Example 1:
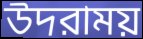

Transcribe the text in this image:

উদরাময়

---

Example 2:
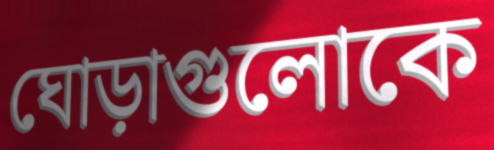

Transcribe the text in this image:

ঘোড়াগুলোকে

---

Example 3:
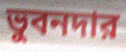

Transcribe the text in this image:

ভুবনদার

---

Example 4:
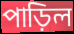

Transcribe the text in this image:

পাড়িল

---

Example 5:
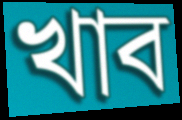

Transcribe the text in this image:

খাব